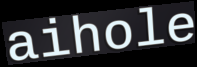
aihole